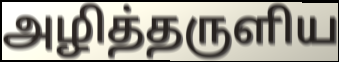
அழித்தருளிய